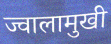
ज्वालामुखी